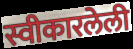
स्वीकारलेली